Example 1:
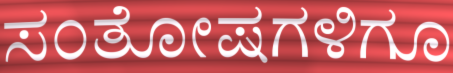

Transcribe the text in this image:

ಸಂತೋಷಗಳಿಗೂ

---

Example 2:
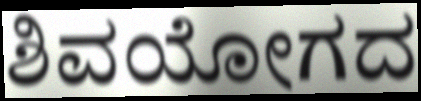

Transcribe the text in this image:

ಶಿವಯೋಗದ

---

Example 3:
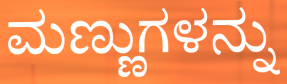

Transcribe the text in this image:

ಮಣ್ಣುಗಳನ್ನು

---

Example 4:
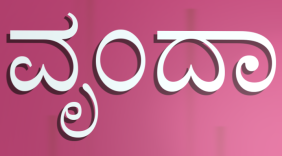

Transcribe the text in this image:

ವೃಂದಾ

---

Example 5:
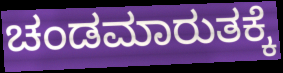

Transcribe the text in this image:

ಚಂಡಮಾರುತಕ್ಕೆ